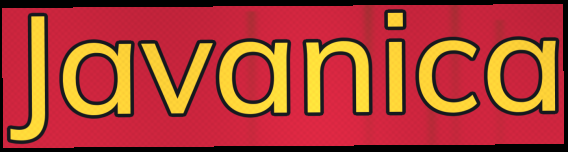
Javanica